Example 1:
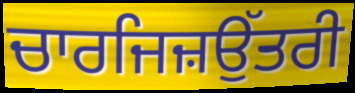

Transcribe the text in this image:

ਚਾਰਜਿਜ਼ਉੱਤਰੀ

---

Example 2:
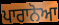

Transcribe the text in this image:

ਪਾਰਾਨੋਆ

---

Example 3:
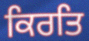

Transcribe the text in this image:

ਕਿਰਤਿ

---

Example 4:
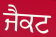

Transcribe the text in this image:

ਜੈਕਟ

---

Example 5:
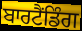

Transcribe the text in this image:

ਬਾਰਟੈਂਡਿੰਗ